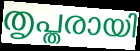
തൃപ്തരായി